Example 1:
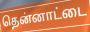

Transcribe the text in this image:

தென்னாட்டை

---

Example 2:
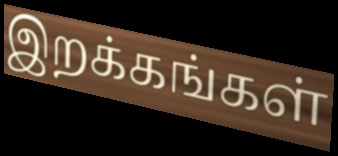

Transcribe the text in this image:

இறக்கங்கள்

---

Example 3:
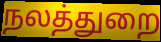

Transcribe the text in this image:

நலத்துறை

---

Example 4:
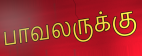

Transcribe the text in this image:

பாவலருக்கு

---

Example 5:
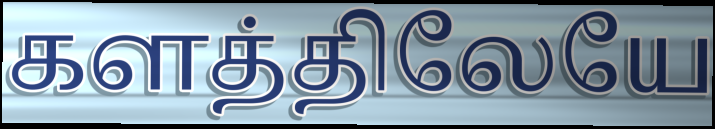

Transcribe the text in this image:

களத்திலேயே